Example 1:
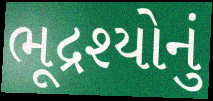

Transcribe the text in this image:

ભૂદ્રશ્યોનું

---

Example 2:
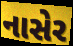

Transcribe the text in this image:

નાસેર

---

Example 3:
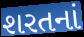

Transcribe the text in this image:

શરતનાં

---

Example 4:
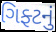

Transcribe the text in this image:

ગિફ્ટનું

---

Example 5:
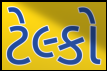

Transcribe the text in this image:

ટેલ્કો